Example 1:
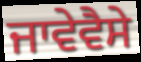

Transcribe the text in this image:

ਜਾਵੇਵੈਸੇ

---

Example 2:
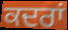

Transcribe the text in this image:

ਕਦਰਾਂ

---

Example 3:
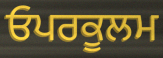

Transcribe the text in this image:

ਓਪਰਕੂਲਮ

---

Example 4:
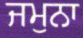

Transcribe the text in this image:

ਜਮੁਨਾ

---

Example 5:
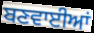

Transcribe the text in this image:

ਬਣਵਾਈਆਂ